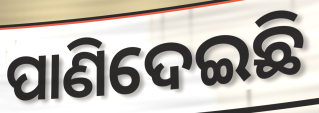
ପାଣିଦେଇଛି